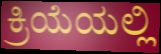
ಕ್ರಿಯೆಯಲ್ಲಿ